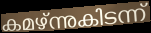
കമഴ്ന്നുകിടന്ന്